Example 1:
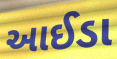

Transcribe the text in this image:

આઈડા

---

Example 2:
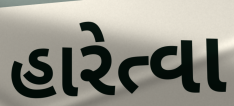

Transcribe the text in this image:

હારેત્વા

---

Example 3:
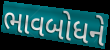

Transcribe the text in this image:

ભાવબોધને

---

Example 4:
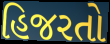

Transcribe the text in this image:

હિજરતો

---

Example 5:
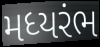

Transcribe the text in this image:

મધ્યરંભ